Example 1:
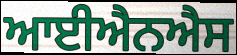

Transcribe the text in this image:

ਆਈਐਨਐਸ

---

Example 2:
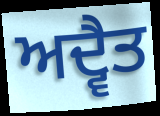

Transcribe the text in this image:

ਅਦ੍ਵੈਤ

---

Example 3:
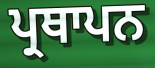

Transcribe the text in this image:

ਪ੍ਰਥਾਪਨ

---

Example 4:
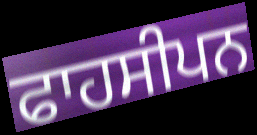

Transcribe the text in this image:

ਫਾਹਸੀਪਨ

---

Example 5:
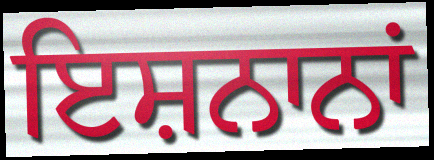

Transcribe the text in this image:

ਇਸ਼ਨਾਨਾਂ